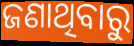
ଜଣାଥିବାରୁ